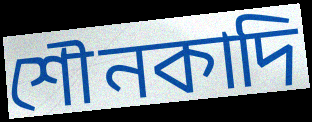
শৌনকাদি